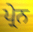
ਪ੍ਰੇਨ